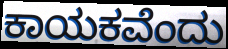
ಕಾಯಕವೆಂದು